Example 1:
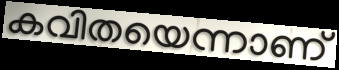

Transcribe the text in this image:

കവിതയെന്നാണ്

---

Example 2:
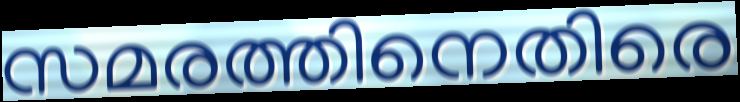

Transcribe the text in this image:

സമരത്തിനെതിരെ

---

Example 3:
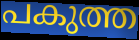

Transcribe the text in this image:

പകുത്ത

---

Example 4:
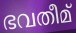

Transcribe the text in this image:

ഭവതീമ്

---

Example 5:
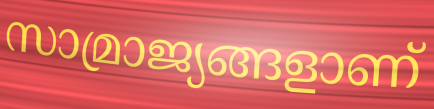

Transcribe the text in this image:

സാമ്രാജ്യങ്ങളാണ്